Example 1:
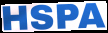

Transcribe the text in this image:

HSPA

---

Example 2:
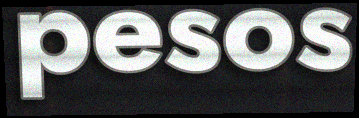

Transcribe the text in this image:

pesos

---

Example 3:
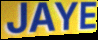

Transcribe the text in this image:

JAYE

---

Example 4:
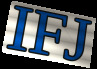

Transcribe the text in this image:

IFJ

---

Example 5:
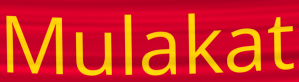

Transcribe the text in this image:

Mulakat